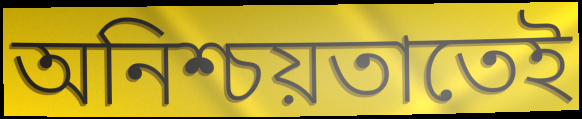
অনিশ্চয়তাতেই